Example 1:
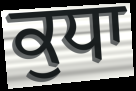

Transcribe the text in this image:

ਕੁਧਾ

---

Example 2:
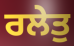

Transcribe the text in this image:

ਰਲੇਤੁ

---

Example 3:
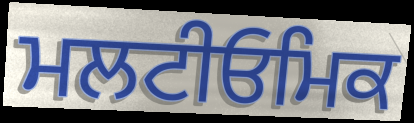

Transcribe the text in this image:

ਮਲਟੀਓਮਿਕ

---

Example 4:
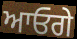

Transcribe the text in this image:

ਆਓਗੇ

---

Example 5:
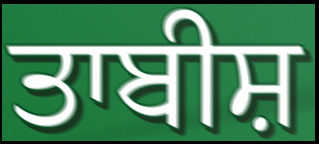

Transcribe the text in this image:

ਤਾਬੀਸ਼